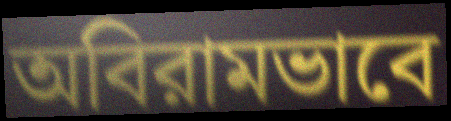
অবিরামভাবে